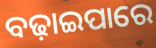
ବଢ଼ାଇପାରେ